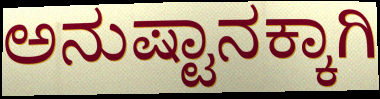
ಅನುಷ್ಟಾನಕ್ಕಾಗಿ